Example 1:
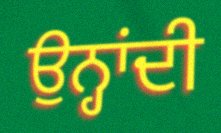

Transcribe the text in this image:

ਉਨ੍ਹਾਂਦੀ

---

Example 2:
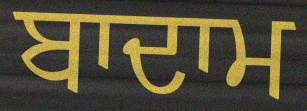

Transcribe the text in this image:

ਬਾਦਾਮ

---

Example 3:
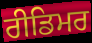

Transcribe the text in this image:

ਰੀਡਿਮਰ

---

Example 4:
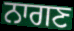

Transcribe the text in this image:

ਨਾਗਣ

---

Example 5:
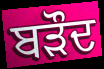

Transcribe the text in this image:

ਬੜੌਦ